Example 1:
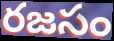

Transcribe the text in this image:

రజసం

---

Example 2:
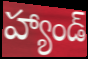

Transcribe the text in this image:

హ్యాండ్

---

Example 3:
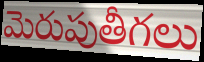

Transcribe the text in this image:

మెరుపుతీగలు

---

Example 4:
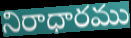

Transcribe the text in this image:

నిరాధారము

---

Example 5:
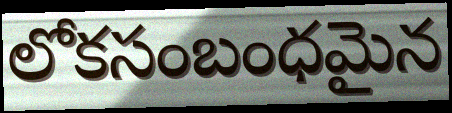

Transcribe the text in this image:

లోకసంబంధమైన